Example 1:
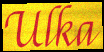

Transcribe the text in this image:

Ulka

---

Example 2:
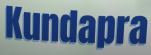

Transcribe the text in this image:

Kundapra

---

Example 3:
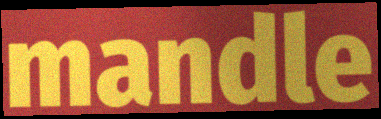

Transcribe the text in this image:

mandle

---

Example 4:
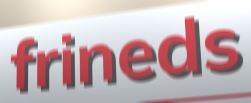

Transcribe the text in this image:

frineds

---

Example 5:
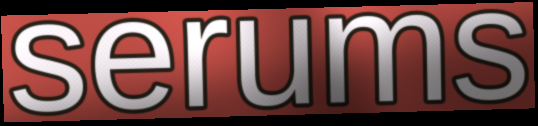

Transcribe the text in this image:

serums